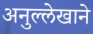
अनुल्लेखाने